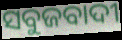
ସବୁଜବାଦୀ